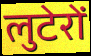
लुटेरों